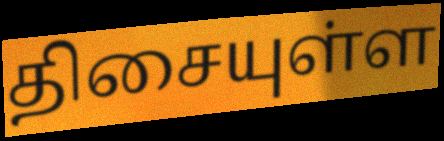
திசையுள்ள